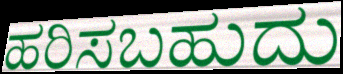
ಹರಿಸಬಹುದು